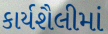
કાર્યશૈલીમાં